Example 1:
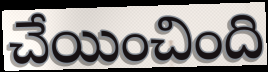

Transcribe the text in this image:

చేయించింది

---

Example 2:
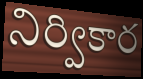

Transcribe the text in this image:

నిర్వికార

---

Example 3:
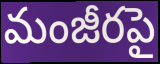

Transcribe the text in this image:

మంజీరపై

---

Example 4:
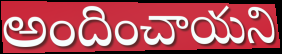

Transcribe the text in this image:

అందించాయని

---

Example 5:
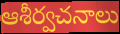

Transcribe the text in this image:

ఆశీర్వచనాలు